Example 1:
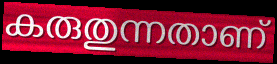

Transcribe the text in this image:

കരുതുന്നതാണ്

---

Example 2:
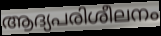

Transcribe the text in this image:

ആദ്യപരിശീലനം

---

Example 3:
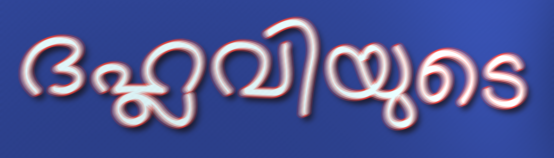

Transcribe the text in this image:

ദഹ്ലവിയുടെ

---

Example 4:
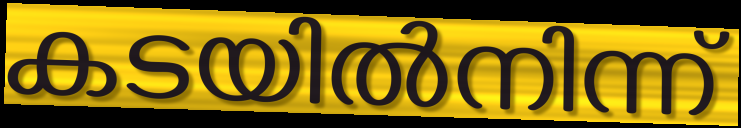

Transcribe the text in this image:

കടയിൽനിന്ന്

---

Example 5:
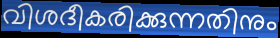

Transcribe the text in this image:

വിശദീകരിക്കുന്നതിനും